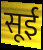
सूई